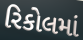
રિકોલમાં